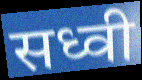
सध्वी